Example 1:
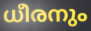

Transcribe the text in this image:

ധീരനും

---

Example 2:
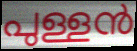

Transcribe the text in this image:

പുള്ളൻ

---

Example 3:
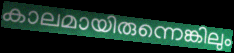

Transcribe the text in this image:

കാലമായിരുന്നെങ്കിലും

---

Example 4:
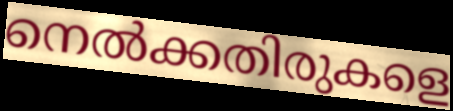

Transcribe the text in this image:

നെൽക്കതിരുകളെ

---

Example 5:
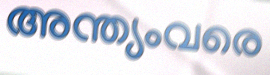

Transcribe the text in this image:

അന്ത്യംവരെ